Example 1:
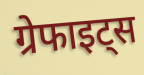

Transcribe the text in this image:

ग्रेफाइट्स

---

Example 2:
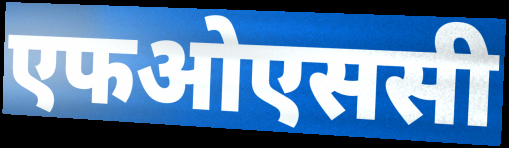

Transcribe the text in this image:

एफओएससी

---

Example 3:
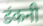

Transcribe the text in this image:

डंकनी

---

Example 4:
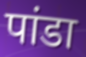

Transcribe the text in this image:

पांडा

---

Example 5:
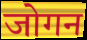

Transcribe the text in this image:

जोगन